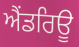
ਐਂਡਰਿਊ